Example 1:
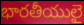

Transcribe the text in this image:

భారతీయులై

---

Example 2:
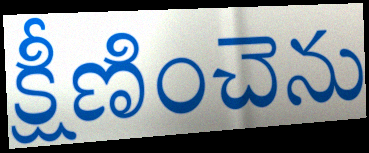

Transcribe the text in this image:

క్షీణించెను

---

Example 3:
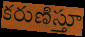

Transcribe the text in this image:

కరుణిస్తూ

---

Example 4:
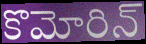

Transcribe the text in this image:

కొమోరిన్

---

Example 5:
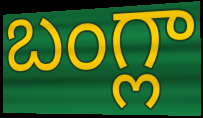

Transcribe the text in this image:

బంగ్లా